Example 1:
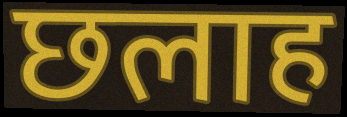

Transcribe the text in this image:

छलाह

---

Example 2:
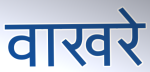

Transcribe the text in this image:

वाखरे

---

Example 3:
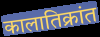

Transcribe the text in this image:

कालातिक्रांत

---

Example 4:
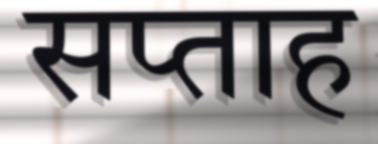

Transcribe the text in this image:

सप्‍ताह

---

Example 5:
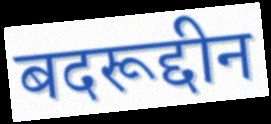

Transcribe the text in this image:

बदरूद्दीन